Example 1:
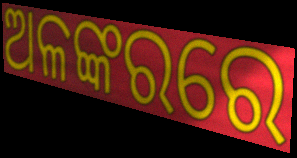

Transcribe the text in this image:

ଅଳଙ୍କରରେ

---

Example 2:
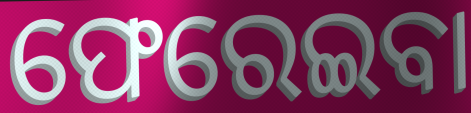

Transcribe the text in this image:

ଫେରେଇବା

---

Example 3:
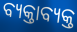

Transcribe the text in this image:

ବ୍ୟକ୍ତାବ୍ୟକ୍ତ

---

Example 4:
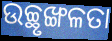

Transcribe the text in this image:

ଉଚ୍ଛୃଙ୍ଖଳତା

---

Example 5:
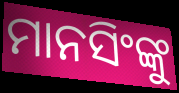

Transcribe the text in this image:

ମାନସିଂଙ୍କୁ